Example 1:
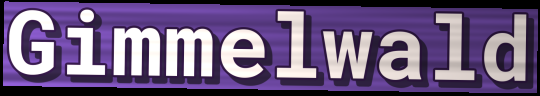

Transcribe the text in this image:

Gimmelwald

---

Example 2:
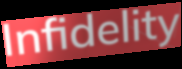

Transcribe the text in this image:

Infidelity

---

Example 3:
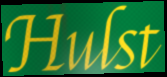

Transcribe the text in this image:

Hulst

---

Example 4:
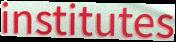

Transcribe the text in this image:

institutes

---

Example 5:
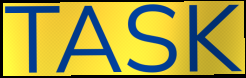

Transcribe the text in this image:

TASK